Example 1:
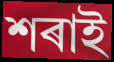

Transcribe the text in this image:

শৰাই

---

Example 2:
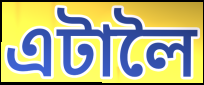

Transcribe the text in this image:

এটালৈ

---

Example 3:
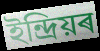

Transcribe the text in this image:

ইন্দ্ৰিয়ৰ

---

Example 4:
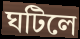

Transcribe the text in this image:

ঘটিলে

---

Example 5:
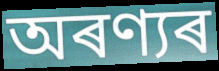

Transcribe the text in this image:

অৰণ্যৰ